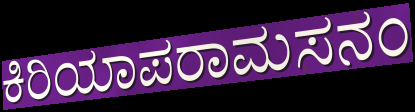
ಕಿರಿಯಾಪರಾಮಸನಂ